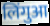
लिंगुआ